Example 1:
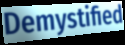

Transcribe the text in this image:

Demystified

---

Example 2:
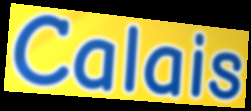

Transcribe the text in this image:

Calais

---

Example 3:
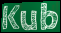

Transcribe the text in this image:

Kub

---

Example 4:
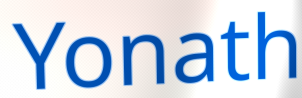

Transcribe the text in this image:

Yonath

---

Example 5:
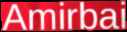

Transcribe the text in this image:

Amirbai